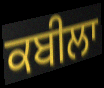
ਕਬੀਲਾ